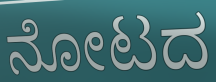
ನೋಟದ